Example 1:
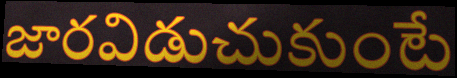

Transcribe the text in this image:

జారవిడుచుకుంటే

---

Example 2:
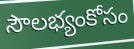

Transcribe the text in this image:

సౌలభ్యంకోసం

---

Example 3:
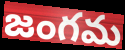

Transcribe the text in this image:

జంగమ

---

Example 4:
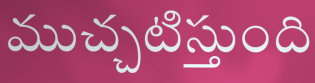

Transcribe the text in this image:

ముచ్చటిస్తుంది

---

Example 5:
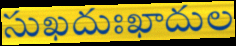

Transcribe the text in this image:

సుఖదుఃఖాదుల